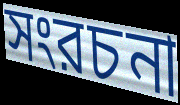
সংরচনা